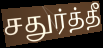
சதுர்த்தீ